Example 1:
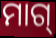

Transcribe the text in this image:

ମାଗ୍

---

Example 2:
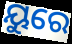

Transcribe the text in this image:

ୟୁରେ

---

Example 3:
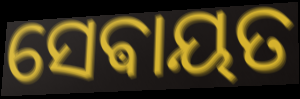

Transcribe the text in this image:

ସେଵାୟତ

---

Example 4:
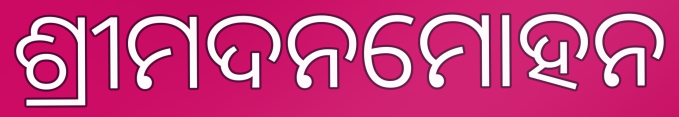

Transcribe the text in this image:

ଶ୍ରୀମଦନମୋହନ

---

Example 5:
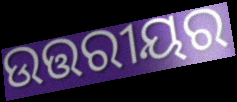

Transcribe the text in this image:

ଉତ୍ତରୀୟର